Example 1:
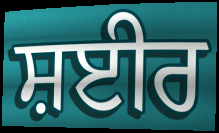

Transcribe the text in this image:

ਸ਼ਈਰ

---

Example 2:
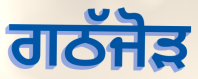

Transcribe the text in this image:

ਗਠੱਜੋੜ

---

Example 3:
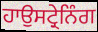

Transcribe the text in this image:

ਹਾਉਸਟ੍ਰੇਨਿੰਗ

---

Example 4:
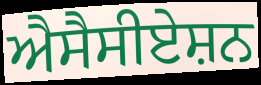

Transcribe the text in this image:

ਐਸੈਸੀਏਸ਼ਨ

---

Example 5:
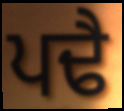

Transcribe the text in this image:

ਪਢੈ